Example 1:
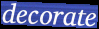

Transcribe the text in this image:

decorate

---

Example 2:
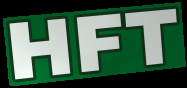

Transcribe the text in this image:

HFT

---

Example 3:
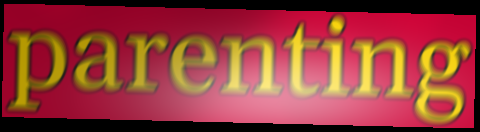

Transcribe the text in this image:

parenting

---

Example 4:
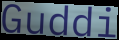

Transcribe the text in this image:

Guddi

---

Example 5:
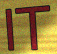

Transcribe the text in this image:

IT